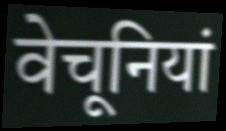
वेचूनियां